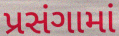
પ્રસંગામાં